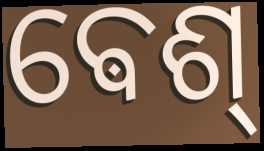
ଵେଶ୍